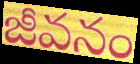
జీవనం